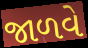
જાળવે